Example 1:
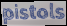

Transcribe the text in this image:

pistols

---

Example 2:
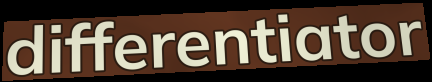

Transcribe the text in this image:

differentiator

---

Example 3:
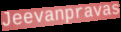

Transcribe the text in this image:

Jeevanpravas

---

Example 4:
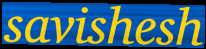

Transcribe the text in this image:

savishesh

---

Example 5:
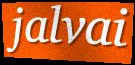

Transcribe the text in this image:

jalvai